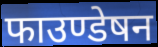
फाउण्डेषन